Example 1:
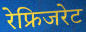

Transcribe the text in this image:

रेफ्रिजरेट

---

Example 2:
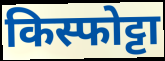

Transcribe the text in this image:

किस्फोट्टा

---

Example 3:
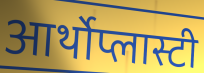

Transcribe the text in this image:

आर्थोप्लास्टी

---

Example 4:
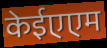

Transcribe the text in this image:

केईएएम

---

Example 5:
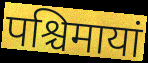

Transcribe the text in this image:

पश्चिमायां